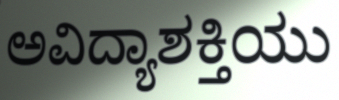
ಅವಿದ್ಯಾಶಕ್ತಿಯು